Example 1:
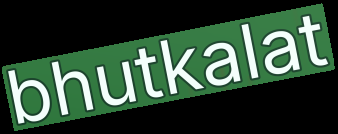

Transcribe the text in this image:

bhutkalat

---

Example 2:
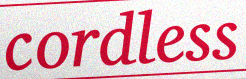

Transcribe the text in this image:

cordless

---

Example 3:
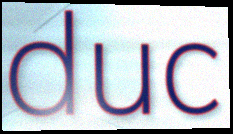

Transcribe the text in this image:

duc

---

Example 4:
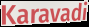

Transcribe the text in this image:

Karavadi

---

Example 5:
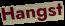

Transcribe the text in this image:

Hangst